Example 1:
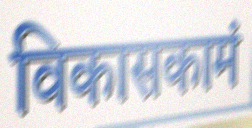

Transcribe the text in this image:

विकासकामं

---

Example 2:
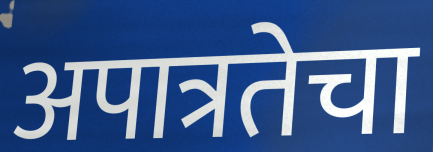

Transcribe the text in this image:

अपात्रतेचा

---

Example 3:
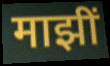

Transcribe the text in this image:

माझीं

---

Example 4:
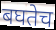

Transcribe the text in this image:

बघतेच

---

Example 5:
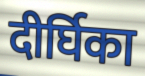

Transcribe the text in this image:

दीर्घिका